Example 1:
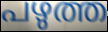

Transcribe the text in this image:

പഴുത്ത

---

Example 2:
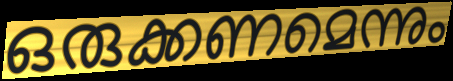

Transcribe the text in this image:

ഒരുക്കണമെന്നും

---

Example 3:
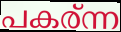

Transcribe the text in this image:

പകര്ന്ന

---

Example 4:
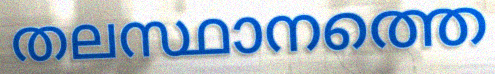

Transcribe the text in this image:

തലസ്ഥാനത്തെ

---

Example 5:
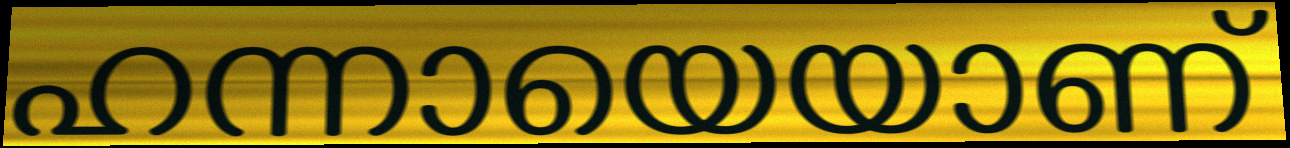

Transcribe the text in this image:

ഹന്നായെയാണ്